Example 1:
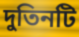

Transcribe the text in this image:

দুতিনটি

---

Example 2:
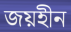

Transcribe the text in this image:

জয়হীন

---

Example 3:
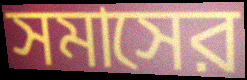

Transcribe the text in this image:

সমাসের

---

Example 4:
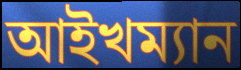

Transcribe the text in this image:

আইখম্যান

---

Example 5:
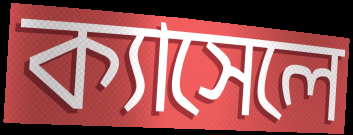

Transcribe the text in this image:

ক্যাসেলে